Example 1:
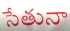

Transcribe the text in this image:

సేతునా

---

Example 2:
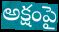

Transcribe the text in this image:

అక్షంపై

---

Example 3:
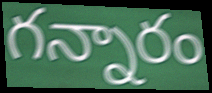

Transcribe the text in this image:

గన్నారం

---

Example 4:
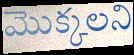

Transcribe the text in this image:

మొక్కలని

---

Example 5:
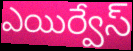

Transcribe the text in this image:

ఎయిర్వేస్